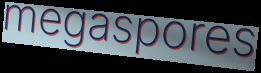
megaspores